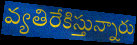
వ్యతిరేకిస్తున్నారు